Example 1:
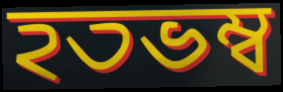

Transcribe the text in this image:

হতভম্ব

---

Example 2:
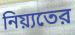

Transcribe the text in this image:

নিয়্যতের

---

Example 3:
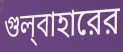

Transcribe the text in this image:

গুল্‌বাহারের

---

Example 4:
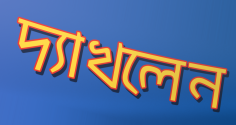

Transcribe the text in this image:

দ্যাখলেন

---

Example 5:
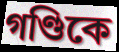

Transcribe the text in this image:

গণ্ডিকে